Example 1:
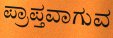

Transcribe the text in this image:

ಪ್ರಾಪ್ತವಾಗುವ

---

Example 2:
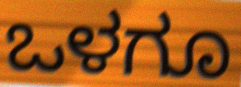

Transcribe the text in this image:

ಒಳಗೂ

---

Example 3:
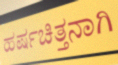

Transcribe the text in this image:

ಹರ್ಷಚಿತ್ತನಾಗಿ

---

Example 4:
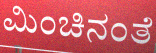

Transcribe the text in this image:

ಮಿಂಚಿನಂತೆ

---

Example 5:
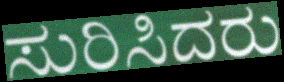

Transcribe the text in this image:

ಸುರಿಸಿದರು